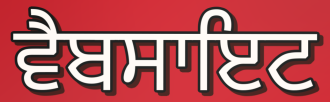
ਵੈਬਸਾਇਟ